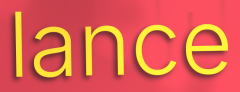
lance